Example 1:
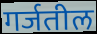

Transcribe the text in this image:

गर्जतील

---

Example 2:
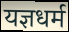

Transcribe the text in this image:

यज्ञधर्म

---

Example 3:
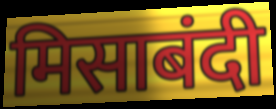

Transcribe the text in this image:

मिसाबंदी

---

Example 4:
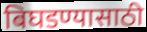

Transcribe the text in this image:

बिघडण्यासाठी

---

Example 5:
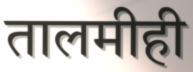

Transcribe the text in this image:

तालमीही